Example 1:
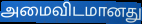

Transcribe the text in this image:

அமைவிடமானது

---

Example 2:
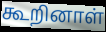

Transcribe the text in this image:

கூறினாள்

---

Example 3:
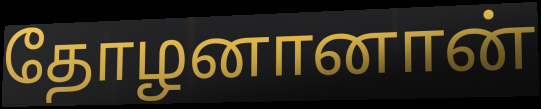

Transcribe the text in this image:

தோழனானான்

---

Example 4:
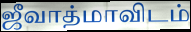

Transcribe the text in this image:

ஜீவாத்மாவிடம்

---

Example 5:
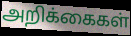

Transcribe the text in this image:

அறிக்கைகள்